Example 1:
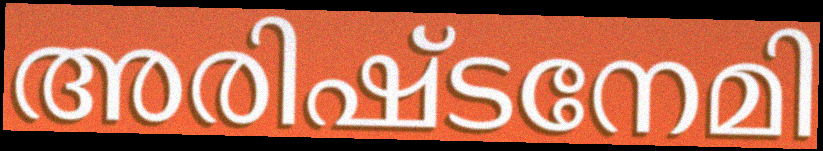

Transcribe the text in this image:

അരിഷ്ടനേമി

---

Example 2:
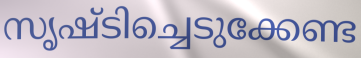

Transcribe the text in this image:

സൃഷ്ടിച്ചെടുക്കേണ്ട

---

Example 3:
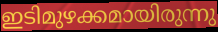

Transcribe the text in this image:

ഇടിമുഴക്കമായിരുന്നു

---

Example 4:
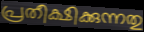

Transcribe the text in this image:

പ്രതീക്ഷിക്കുന്നതു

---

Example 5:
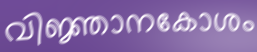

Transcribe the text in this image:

വിജ്ഞാനകോശം